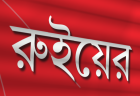
রুইয়ের